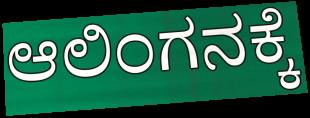
ಆಲಿಂಗನಕ್ಕೆ